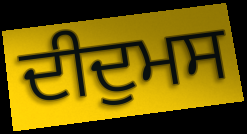
ਦੀਦੁਮਸ